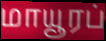
மாயூரப்